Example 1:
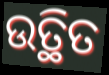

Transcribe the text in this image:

ଉତ୍ଥିତ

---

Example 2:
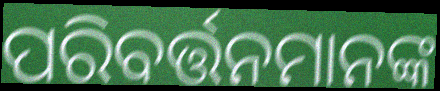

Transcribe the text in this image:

ପରିବର୍ତ୍ତନମାନଙ୍କ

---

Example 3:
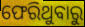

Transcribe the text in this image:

ଫେରିଥୁବାରୁ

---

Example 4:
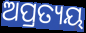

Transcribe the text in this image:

ଅପ୍ରତ୍ୟୟ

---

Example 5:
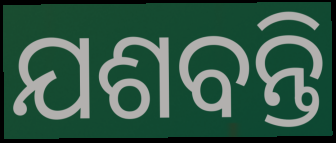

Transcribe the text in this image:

ଯଶବନ୍ତି